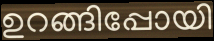
ഉറങ്ങിപ്പോയി